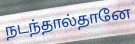
நடந்தால்தானே